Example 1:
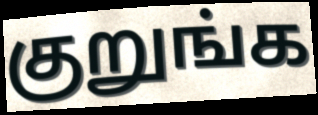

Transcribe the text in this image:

குறுங்க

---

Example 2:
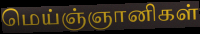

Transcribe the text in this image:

மெய்ஞ்ஞானிகள்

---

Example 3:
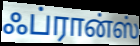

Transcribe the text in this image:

ஃப்ரான்ஸ்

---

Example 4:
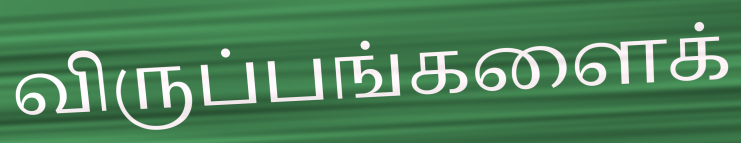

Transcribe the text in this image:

விருப்பங்களைக்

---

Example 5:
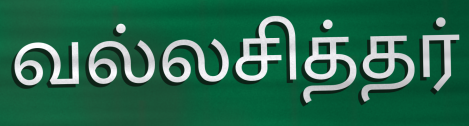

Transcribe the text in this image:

வல்லசித்தர்